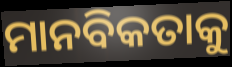
ମାନବିକତାକୁ